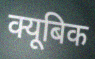
क्यूबिक